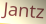
Jantz